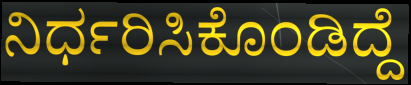
ನಿರ್ಧರಿಸಿಕೊಂಡಿದ್ದೆ